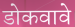
डोकवावे